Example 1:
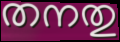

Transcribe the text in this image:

തനതു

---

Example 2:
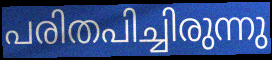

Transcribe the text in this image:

പരിതപിച്ചിരുന്നു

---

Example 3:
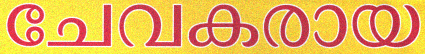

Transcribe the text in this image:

ചേവകരായ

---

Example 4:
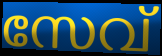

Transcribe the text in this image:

സേവ്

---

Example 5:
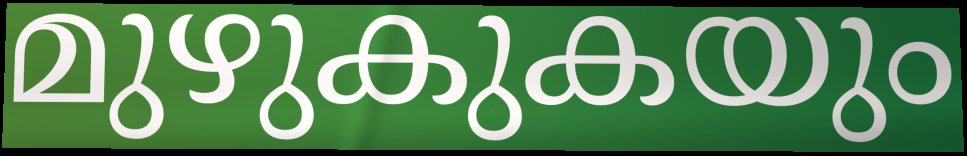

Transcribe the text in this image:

മുഴുകുകയും